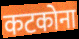
कटकोना